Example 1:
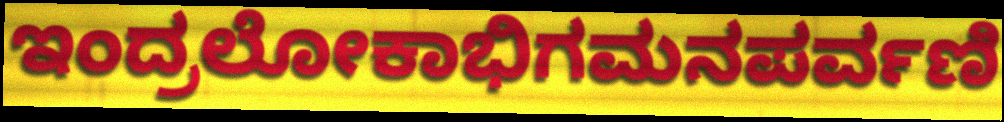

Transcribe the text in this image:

ಇಂದ್ರಲೋಕಾಭಿಗಮನಪರ್ವಣಿ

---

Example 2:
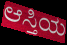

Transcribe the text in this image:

ಆಸ್ತಿಯ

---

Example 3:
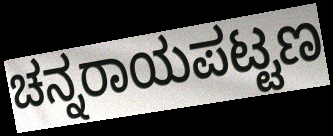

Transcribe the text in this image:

ಚನ್ನರಾಯಪಟ್ಟಣ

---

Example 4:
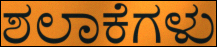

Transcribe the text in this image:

ಶಲಾಕೆಗಳು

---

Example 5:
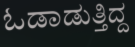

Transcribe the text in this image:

ಓಡಾಡುತ್ತಿದ್ದ